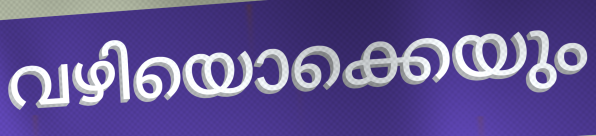
വഴിയൊക്കെയും